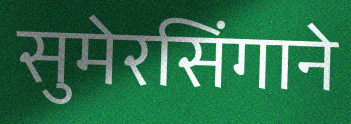
सुमेरसिंगाने